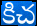
కిచ